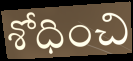
శోధించి